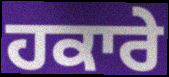
ਹਕਾਰੇ